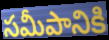
సమీపానికి